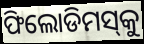
ଫିଲୋଡିମସ୍‌କୁ